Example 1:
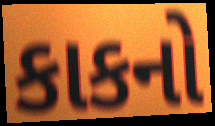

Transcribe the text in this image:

કાકનો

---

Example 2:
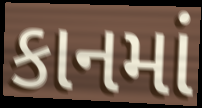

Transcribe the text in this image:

કાનમાં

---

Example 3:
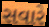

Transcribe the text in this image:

સવારે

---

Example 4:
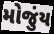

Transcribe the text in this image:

મોજુંય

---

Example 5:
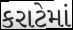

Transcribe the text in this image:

કરાટેમાં